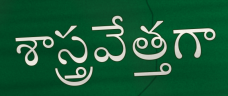
శాస్త్రవేత్తగా